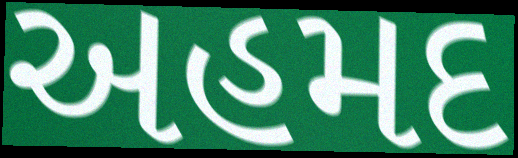
અહમદ